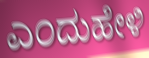
ಎಂದುಹೇಳಿ